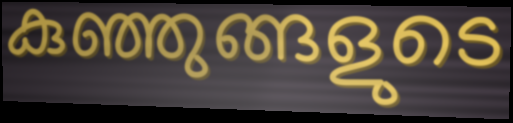
കുഞ്ഞുങ്ങളുടെ